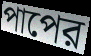
পাপের